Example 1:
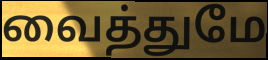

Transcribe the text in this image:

வைத்துமே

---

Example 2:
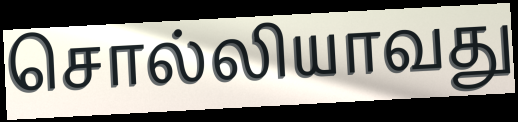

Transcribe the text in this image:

சொல்லியாவது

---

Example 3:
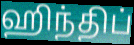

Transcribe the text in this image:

ஹிந்திப்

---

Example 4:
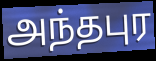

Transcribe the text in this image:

அந்தபுர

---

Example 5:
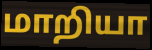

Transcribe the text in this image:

மாறியா